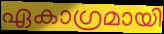
ഏകാഗ്രമായി